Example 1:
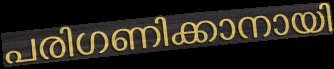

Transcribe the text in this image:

പരിഗണിക്കാനായി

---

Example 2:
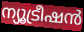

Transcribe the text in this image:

ന്യൂട്രീഷൻ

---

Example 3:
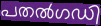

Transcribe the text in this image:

പതൽഗഡി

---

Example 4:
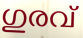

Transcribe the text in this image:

ഗുരവ്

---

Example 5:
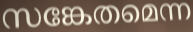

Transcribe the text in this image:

സങ്കേതമെന്ന